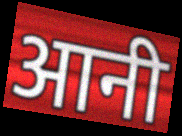
आनी